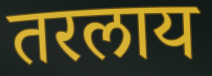
तरलाय